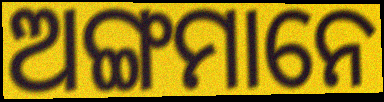
ଅଙ୍ଗମାନେ